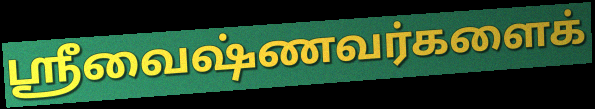
ஸ்ரீவைஷ்ணவர்களைக்